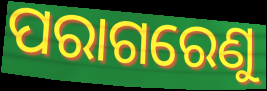
ପରାଗରେଣୁ